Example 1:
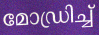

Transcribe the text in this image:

മോഡ്രിച്ച്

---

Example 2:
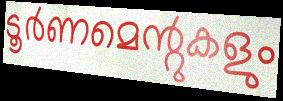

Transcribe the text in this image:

ടൂർണമെന്റുകളും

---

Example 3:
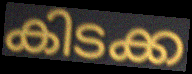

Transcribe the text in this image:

കിടക്ക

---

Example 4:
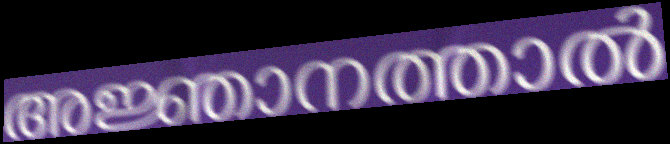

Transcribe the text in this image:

അജ്ഞാനത്താൽ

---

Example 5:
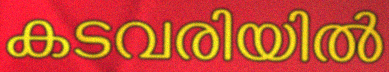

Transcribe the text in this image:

കടവരിയിൽ